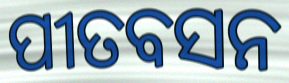
ପୀତବସନ